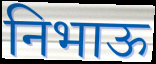
निभाऊ